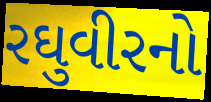
રઘુવીરનો